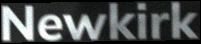
Newkirk